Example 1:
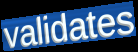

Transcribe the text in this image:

validates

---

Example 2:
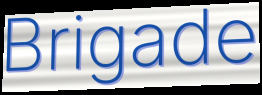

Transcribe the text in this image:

Brigade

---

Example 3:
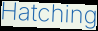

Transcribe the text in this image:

Hatching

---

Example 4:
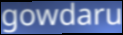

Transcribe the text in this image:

gowdaru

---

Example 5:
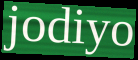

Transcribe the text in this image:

jodiyo